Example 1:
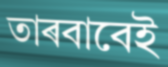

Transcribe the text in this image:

তাৰবাবেই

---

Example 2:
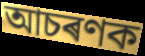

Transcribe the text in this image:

আচৰণক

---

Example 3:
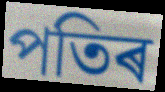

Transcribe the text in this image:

পতিৰ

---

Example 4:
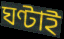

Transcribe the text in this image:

ঘণ্টাই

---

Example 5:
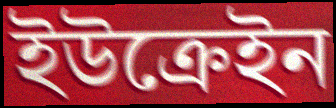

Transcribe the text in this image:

ইউক্ৰেইন